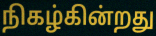
நிகழ்கின்றது